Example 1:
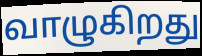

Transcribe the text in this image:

வாழுகிறது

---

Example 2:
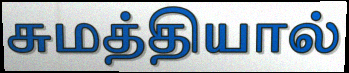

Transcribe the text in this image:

சுமத்தியால்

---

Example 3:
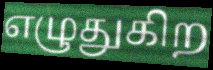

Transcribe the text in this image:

எழுதுகிற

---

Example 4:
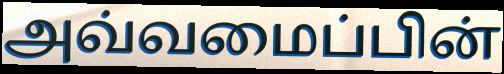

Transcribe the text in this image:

அவ்வமைப்பின்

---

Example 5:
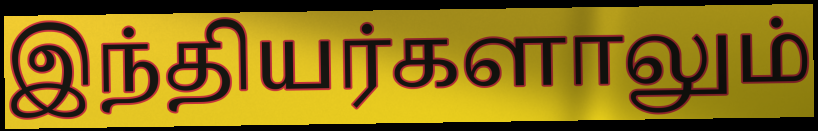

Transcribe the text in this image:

இந்தியர்களாலும்